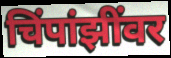
चिंपांझींवर